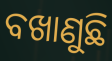
ବଖାଣୁଛି